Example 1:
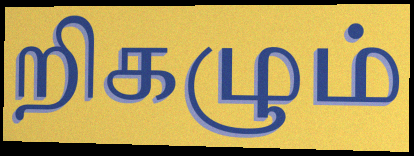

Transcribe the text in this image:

றிகழும்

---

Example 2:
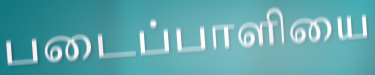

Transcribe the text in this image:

படைப்பாளியை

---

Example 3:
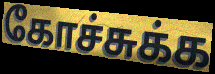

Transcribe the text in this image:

கோச்சுக்க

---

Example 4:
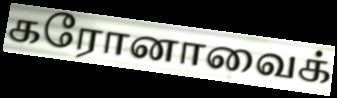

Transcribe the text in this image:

கரோனாவைக்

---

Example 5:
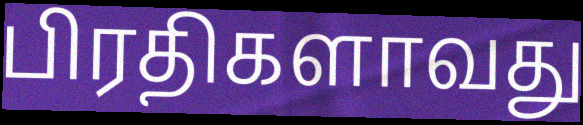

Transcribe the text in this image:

பிரதிகளாவது